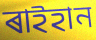
ৰাইহান